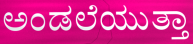
ಅಂಡಲೆಯುತ್ತಾ